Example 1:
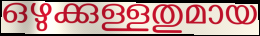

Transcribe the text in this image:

ഒഴുക്കുള്ളതുമായ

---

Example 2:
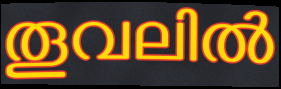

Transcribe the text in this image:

തൂവലിൽ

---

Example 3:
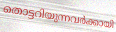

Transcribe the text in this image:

തൊട്ടറിയുന്നവർക്കായി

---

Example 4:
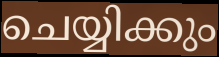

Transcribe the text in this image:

ചെയ്യിക്കും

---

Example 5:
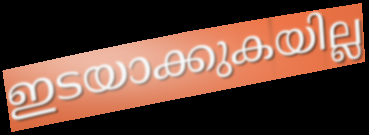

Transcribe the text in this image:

ഇടയാക്കുകയില്ല